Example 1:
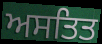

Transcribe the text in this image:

ਅਸਤਿਤ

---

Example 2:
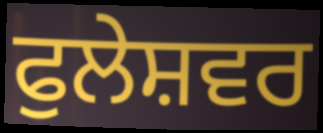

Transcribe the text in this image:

ਫੁਲੇਸ਼ਵਰ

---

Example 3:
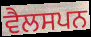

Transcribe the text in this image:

ਵੈਲਸਪਨ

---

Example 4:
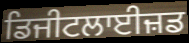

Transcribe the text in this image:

ਡਿਜੀਟਲਾਈਜ਼ਡ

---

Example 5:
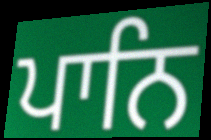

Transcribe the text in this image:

ਪਾਨਿ